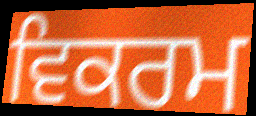
ਵਿਕਰਮ